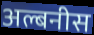
अल्बनीस